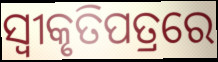
ସ୍ୱୀକୃତିପତ୍ରରେ